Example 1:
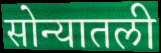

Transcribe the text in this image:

सोन्यातली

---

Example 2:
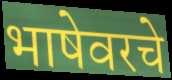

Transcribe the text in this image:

भाषेवरचे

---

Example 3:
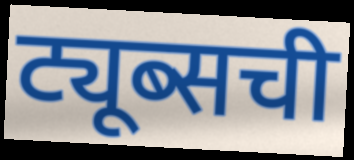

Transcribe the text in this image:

ट्यूब्सची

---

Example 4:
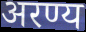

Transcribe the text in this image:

अरण्य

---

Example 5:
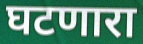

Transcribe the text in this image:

घटणारा